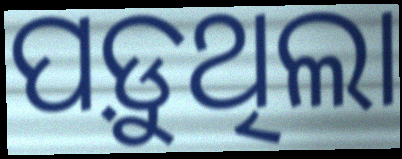
ପଡ଼ୁଥିଲା